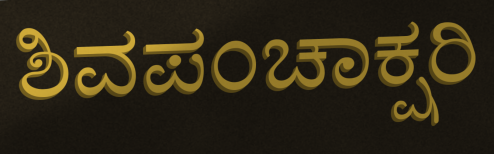
ಶಿವಪಂಚಾಕ್ಷರಿ